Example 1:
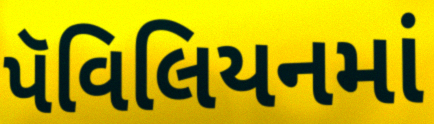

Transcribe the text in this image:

પૅવિલિયનમાં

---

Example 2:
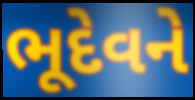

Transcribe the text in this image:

ભૂદેવને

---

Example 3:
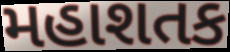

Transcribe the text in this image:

મહાશતક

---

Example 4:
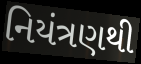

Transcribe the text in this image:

નિયંત્રણથી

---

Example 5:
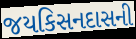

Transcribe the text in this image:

જયકિસનદાસની